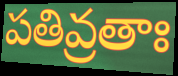
పతివ్రతాః